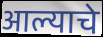
आल्याचे